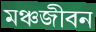
মঞ্চজীবন